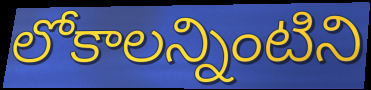
లోకాలన్నింటిని